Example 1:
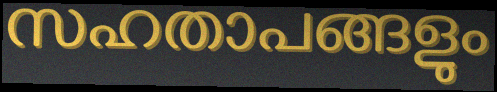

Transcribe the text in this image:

സഹതാപങ്ങളും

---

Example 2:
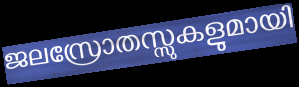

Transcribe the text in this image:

ജലസ്രോതസ്സുകളുമായി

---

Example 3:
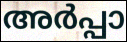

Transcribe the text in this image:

അർപ്പാ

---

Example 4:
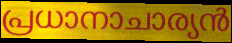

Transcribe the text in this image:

പ്രധാനാചാര്യൻ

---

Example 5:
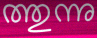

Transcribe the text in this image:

ത്തുന്നു